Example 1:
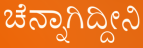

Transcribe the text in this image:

ಚೆನ್ನಾಗಿದ್ದೀನಿ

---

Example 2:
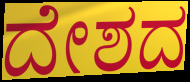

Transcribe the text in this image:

ದೇಶದ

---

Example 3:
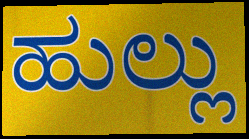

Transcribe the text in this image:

ಹುಲ್ಲು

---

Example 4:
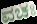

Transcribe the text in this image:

ವಚಃ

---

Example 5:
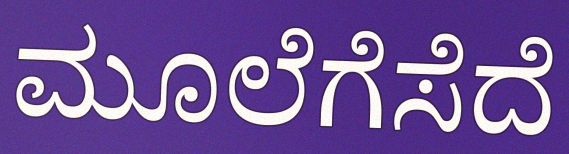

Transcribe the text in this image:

ಮೂಲೆಗೆಸೆದೆ